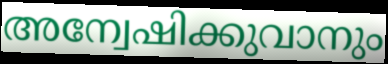
അന്വേഷിക്കുവാനും